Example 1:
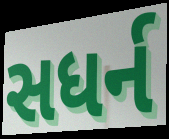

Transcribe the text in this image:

સધર્ન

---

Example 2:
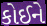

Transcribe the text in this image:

કોઈને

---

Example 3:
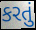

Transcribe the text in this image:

કરતું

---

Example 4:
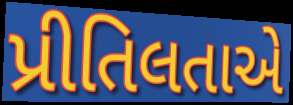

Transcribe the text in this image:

પ્રીતિલતાએ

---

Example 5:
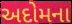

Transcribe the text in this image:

અદોમના